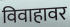
विवाहावर